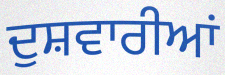
ਦੁਸ਼ਵਾਰੀਆਂ